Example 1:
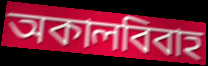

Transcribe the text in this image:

অকালবিবাহ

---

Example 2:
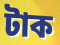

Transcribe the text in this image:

টাক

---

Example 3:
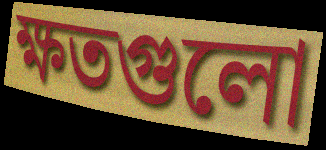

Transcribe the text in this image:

ক্ষতগুলো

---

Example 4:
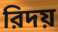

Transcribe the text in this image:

রিদয়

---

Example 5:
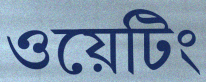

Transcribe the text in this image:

ওয়েটিং